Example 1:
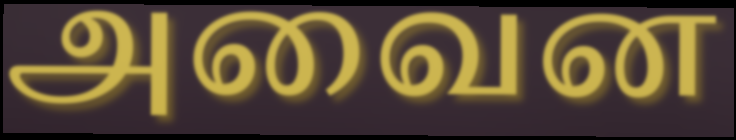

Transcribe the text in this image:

அவைன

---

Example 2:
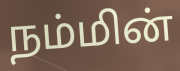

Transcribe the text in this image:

நம்மின்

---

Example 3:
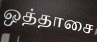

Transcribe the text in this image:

ஒத்தாசை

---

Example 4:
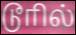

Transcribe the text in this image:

டூரில்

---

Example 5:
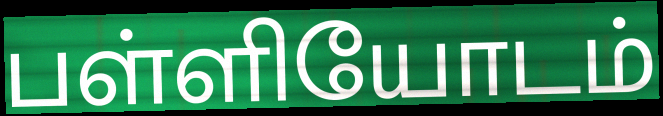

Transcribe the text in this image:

பள்ளியோடம்